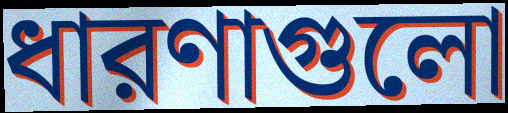
ধারণাগুলো